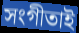
সংগীতাই